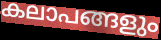
കലാപങ്ങളും